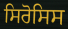
ਸਿਰੋਸਿਸ